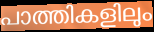
പാത്തികളിലും